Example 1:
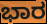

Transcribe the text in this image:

ಭಾರ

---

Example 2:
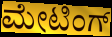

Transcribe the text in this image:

ಮೇಟಿಂಗ್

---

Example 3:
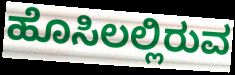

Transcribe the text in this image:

ಹೊಸಿಲಲ್ಲಿರುವ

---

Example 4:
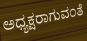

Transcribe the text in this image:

ಅಧ್ಯಕ್ಷರಾಗುವಂತೆ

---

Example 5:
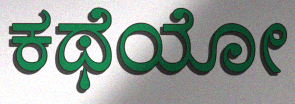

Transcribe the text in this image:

ಕಥೆಯೋ